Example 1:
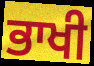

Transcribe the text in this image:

ਭਾਖੀ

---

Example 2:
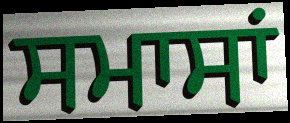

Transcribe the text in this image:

ਸਮਾਸਾਂ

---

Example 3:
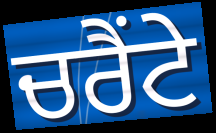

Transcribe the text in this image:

ਚਰੈਂਟੇ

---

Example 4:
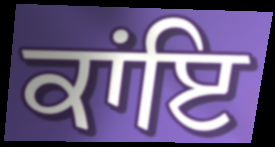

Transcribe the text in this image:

ਕਾਂਇ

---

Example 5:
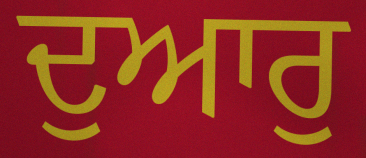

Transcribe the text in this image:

ਦੁਆਰੁ